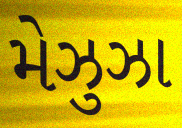
મેઝુઝા